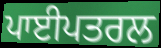
ਪਾਈਪਤਰਲ